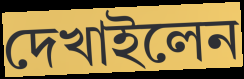
দেখাইলেন